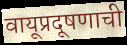
वायूप्रदूषणाची